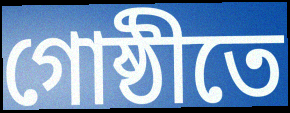
গোষ্ঠীতে